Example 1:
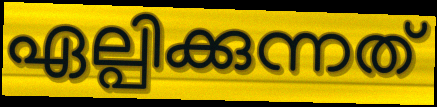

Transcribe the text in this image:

ഏല്പിക്കുന്നത്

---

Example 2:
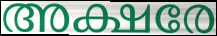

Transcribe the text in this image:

അക്ഷരേ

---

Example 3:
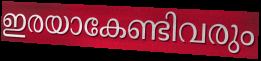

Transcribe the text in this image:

ഇരയാകേണ്ടിവരും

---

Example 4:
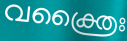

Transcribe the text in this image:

വക്ത്രൈഃ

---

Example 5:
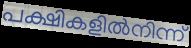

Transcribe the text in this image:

പക്ഷികളിൽനിന്ന്